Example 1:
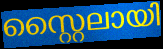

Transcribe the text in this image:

സ്റ്റൈലായി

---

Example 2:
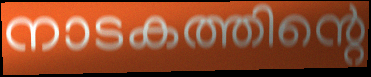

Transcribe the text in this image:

നാടകത്തിന്റെ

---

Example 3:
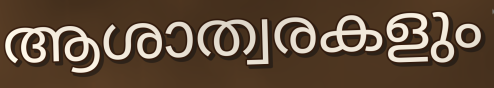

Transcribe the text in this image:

ആശാത്വരകളും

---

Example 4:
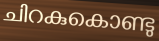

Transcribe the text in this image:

ചിറകുകൊണ്ടു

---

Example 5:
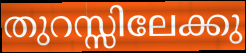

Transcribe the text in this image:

തുറസ്സിലേക്കു